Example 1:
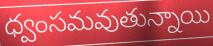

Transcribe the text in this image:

ధ్వంసమవుతున్నాయి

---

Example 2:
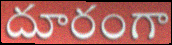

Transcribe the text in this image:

దూరంగా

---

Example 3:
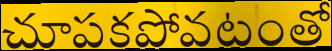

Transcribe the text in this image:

చూపకపోవటంతో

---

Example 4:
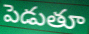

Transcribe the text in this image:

పెడుతూ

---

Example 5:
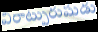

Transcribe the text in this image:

విరాట్పురుషుడు